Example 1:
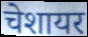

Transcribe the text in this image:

चेशायर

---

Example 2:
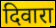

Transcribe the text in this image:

दिवारा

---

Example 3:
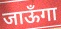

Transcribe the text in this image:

जाऊँगा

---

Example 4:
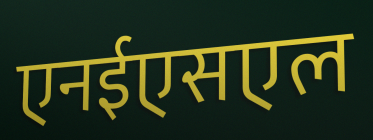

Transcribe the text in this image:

एनईएसएल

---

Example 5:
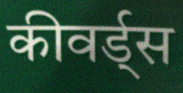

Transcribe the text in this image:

कीवर्ड्स